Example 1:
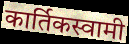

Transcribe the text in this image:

कार्तिकस्वामी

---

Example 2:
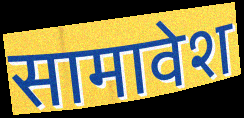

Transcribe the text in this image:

सामावेश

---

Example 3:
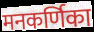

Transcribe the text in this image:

मनकर्णिका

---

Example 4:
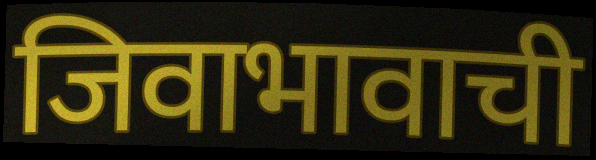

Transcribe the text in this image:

जिवाभावाची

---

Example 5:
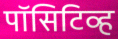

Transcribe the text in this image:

पॉसिटिव्ह